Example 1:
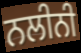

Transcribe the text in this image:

ਨਲੀਨੀ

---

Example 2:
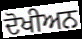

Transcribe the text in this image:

ਦੋਖੀਅਨ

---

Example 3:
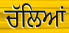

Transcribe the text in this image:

ਚੱਲਿਆਂ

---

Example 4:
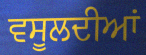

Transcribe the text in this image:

ਵਸੂਲਦੀਆਂ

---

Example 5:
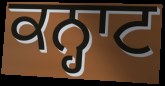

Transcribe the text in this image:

ਕਨ੍ਹਾਟ